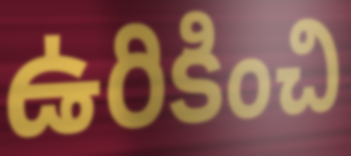
ఉరికించి